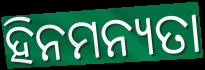
ହିନମନ୍ୟତା